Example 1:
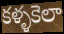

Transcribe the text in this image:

కళ్ళకెలా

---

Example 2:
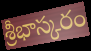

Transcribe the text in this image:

శ్రీభాస్కరం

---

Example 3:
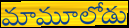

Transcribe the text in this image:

మామూలోడు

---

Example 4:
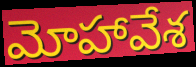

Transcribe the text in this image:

మోహావేశ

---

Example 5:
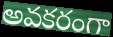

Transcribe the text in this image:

అవకరంగా